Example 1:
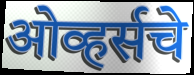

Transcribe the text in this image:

ओव्हर्सचे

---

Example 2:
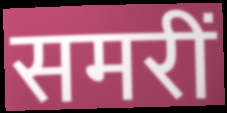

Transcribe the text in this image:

समरीं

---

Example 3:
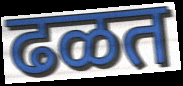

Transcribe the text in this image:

ढळत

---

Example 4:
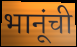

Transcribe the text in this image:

भानूंची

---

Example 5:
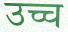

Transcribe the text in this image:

उच्च